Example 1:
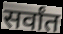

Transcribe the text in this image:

सर्वांत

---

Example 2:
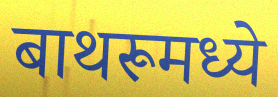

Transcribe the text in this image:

बाथरूमध्ये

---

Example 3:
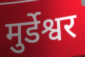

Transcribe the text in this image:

मुर्डेश्वर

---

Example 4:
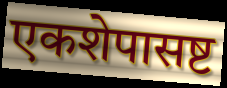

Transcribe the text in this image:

एकशेपासष्ट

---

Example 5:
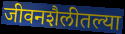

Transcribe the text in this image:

जीवनशैलीतल्या